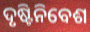
ଦୃଷ୍ଟିନିବେଶ